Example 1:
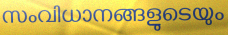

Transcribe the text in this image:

സംവിധാനങ്ങളുടെയും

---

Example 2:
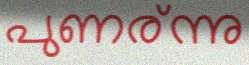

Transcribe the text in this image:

പുണര്ന്നു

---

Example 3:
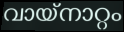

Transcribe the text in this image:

വായ്നാറ്റം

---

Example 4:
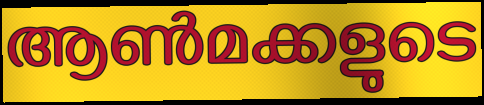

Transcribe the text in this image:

ആൺമക്കളുടെ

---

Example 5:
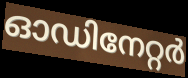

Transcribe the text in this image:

ഓഡിനേറ്റർ